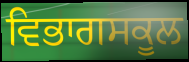
ਵਿਭਾਗਸਕੂਲ